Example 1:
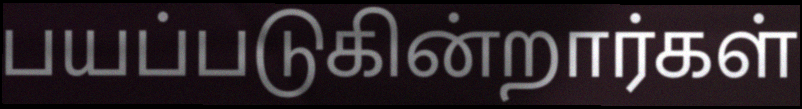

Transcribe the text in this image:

பயப்படுகின்றார்கள்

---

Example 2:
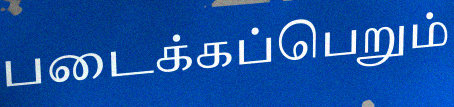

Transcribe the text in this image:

படைக்கப்பெறும்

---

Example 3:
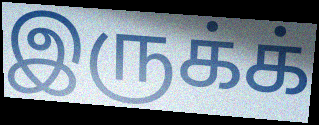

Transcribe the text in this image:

இருக்க்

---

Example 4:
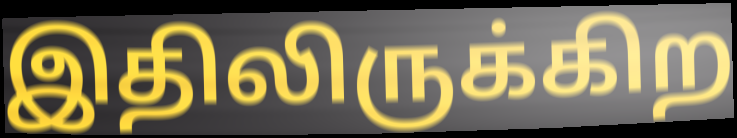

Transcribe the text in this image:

இதிலிருக்கிற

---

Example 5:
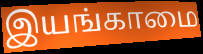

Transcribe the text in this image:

இயங்காமை